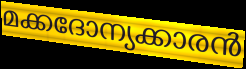
മക്കദോന്യക്കാരൻ